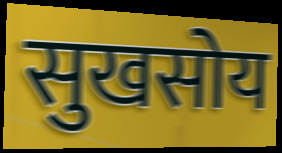
सुखसोय